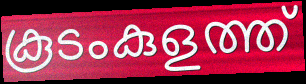
കൂടംകുളത്ത്